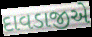
દાવડાજીએ